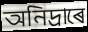
অনিদ্ৰাৰে